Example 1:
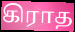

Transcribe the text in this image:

கிராத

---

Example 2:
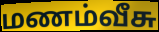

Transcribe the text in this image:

மணம்வீசு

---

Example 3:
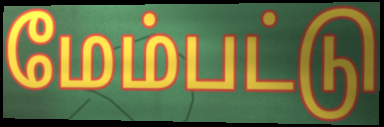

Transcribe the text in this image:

மேம்பட்டு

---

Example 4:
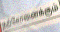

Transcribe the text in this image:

நற்சோனைக்கும்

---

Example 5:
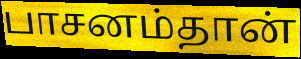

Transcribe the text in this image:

பாசனம்தான்